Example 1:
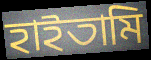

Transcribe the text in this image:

হাইতামি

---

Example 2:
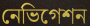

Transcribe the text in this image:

নেভিগেশন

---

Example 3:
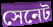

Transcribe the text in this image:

সেনেট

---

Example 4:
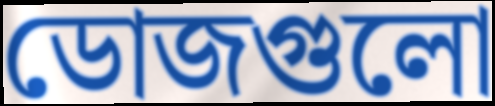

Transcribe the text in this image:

ডোজগুলো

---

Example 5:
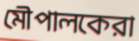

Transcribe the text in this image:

মৌপালকেরা